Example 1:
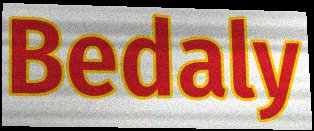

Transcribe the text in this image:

Bedaly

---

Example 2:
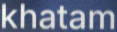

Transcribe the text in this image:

khatam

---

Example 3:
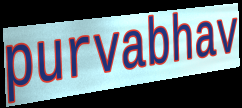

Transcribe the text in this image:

purvabhav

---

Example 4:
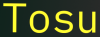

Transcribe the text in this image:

Tosu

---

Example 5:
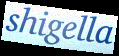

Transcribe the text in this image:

shigella